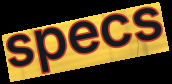
specs